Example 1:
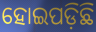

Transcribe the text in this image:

ହୋଇପଡ଼ିଛି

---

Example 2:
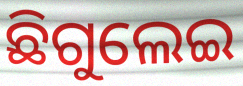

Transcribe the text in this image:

ଛିଗୁଲେଇ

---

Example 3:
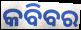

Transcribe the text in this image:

କବିବର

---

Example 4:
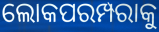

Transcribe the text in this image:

ଲୋକପରମ୍ପରାକୁ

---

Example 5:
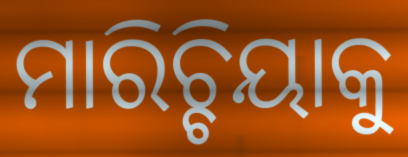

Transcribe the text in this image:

ମାରିଚ୍ଚିୟାକୁ